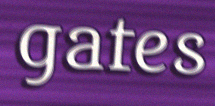
gates